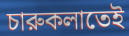
চারুকলাতেই